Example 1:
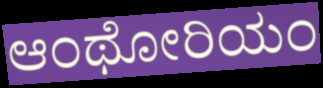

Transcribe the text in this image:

ಆಂಥೋರಿಯಂ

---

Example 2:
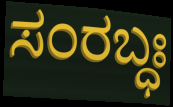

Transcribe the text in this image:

ಸಂರಬ್ಧಃ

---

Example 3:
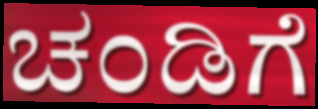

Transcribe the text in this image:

ಚಂಡಿಗೆ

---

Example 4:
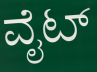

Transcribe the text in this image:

ವೈಟ್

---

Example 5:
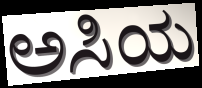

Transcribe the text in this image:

ಅಸಿಯ